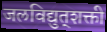
जलविद्युत्‌शक्ती